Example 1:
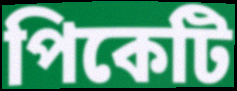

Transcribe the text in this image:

পিকেটি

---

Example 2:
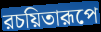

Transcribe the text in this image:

রচয়িতারূপে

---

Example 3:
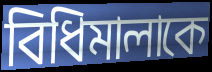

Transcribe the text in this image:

বিধিমালাকে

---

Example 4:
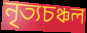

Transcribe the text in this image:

নৃত্যচঞ্চল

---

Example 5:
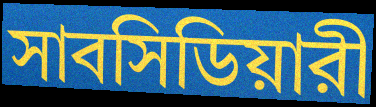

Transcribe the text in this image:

সাবসিডিয়ারী